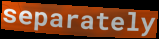
separately